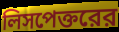
লিসপেক্তরের